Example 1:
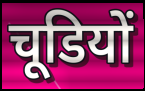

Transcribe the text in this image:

चूडियों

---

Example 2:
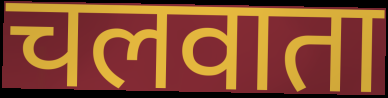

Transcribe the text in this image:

चलवाता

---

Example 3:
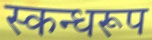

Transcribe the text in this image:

स्कन्धरूप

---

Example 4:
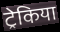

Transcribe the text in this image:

ट्रेकिया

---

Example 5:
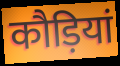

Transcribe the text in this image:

कौड़ियां